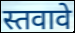
स्तवावे